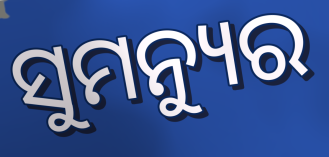
ସୁମନ୍ୟୁର